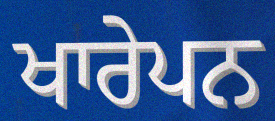
ਖਾਰੇਪਨ